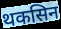
थकसिन